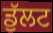
ਡੁੱਲਟ